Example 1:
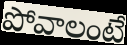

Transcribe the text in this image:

పోవాలంటే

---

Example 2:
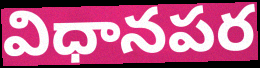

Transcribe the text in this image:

విధానపర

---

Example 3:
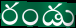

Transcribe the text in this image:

రండు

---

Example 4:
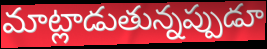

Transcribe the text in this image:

మాట్లాడుతున్నప్పుడూ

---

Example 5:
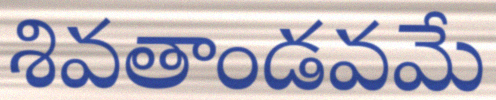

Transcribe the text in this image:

శివతాండవమే